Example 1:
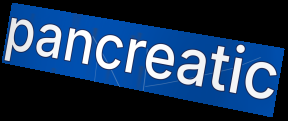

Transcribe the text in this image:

pancreatic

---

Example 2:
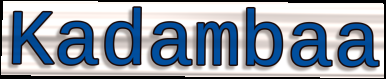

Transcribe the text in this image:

Kadambaa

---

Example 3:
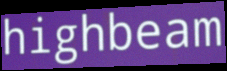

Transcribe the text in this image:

highbeam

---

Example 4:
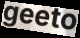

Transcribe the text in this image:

geeto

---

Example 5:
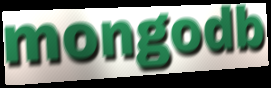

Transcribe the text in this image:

mongodb